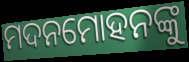
ମଦନମୋହନଙ୍କୁ